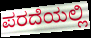
ಪರದೆಯಲ್ಲಿ